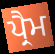
ਪ੍ਰੈਮ